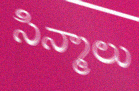
సిన్మాలు